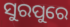
ସୁରପୁରେ